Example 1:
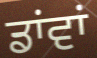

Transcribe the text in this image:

ਡਾਂਵਾਂ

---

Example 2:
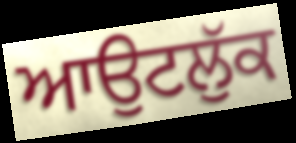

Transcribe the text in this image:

ਆਉਟਲੁੱਕ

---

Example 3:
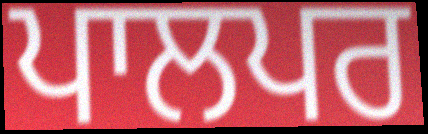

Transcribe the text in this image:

ਪਾਲਪਰ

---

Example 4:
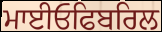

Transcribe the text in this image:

ਮਾਈਓਫਿਬਰਿਲ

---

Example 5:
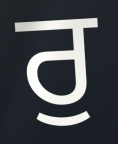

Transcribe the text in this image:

ਰੁ